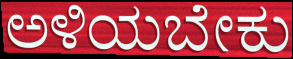
ಅಳಿಯಬೇಕು